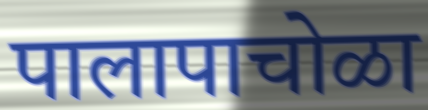
पालापाचोळा